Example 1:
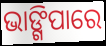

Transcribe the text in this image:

ଭାଙ୍ଗିପାରେ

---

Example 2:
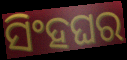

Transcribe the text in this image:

ସିଂହଘର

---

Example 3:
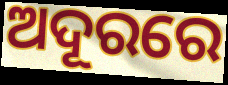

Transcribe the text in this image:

ଅଦୂରରେ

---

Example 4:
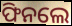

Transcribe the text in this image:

ଫିନଲେ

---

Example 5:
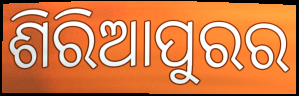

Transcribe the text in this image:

ଶିରିଆପୁରର